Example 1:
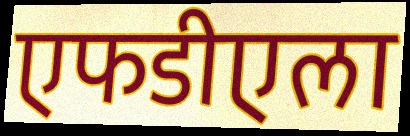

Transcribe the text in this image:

एफडीएला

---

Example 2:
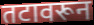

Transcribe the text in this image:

तटावरून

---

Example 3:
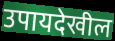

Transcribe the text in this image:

उपायदेखील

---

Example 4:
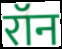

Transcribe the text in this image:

रॉन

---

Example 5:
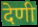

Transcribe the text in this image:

देणी